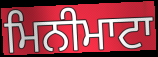
ਮਿਨੀਮਾਟਾ